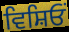
ਵਿਸ਼ਿਓਂ